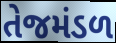
તેજમંડળ